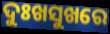
ଦୁଃଖସୁଖରେ